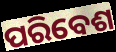
ପରିବେଶ